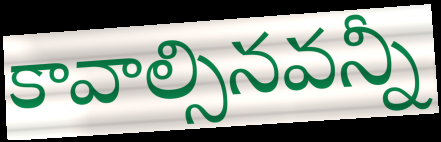
కావాల్సినవన్నీ